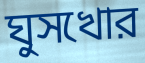
ঘুসখোর